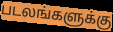
படலங்களுக்கு